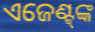
ଏଜେଣ୍ଟ୍‍ଙ୍କ